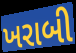
ખરાબી